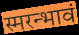
स्मरन्भावं